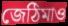
জেঠিমাও